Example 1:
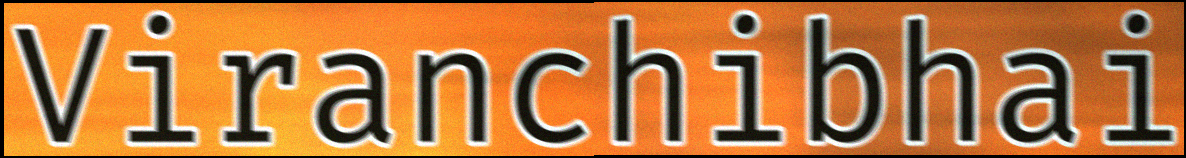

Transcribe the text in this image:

Viranchibhai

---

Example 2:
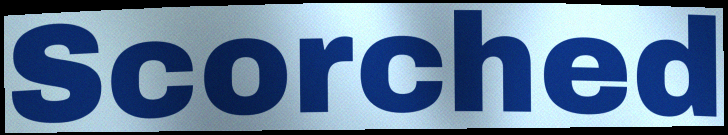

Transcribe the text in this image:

Scorched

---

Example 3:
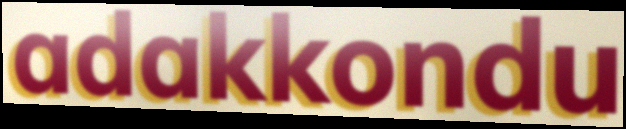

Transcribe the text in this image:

adakkondu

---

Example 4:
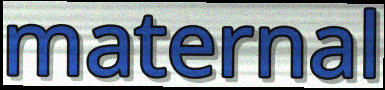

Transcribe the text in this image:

maternal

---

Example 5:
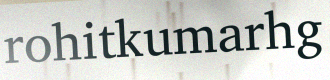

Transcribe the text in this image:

rohitkumarhg